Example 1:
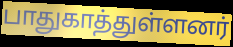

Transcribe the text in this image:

பாதுகாத்துள்ளனர்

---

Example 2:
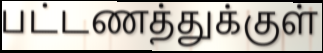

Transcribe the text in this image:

பட்டணத்துக்குள்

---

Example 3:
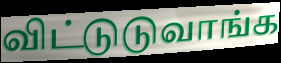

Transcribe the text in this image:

விட்டுடுவாங்க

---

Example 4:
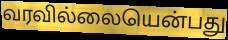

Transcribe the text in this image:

வரவில்லையென்பது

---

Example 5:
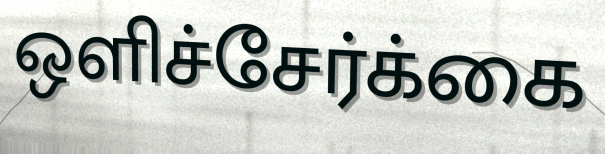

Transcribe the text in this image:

ஒளிச்சேர்க்கை